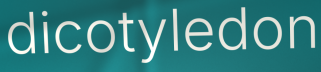
dicotyledon